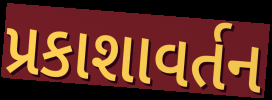
પ્રકાશાવર્તન